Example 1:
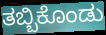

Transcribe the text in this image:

ತಬ್ಬಿಕೊಂಡು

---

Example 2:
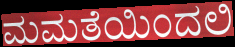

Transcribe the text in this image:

ಮಮತೆಯಿಂದಲಿ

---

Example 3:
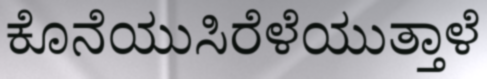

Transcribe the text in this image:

ಕೊನೆಯುಸಿರೆಳೆಯುತ್ತಾಳೆ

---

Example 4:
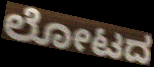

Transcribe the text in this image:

ಲೋಟದ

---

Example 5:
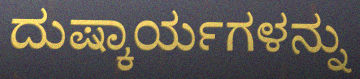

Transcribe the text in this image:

ದುಷ್ಕಾರ್ಯಗಳನ್ನು